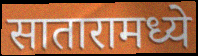
सातारामध्ये